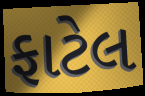
ફાટેલ